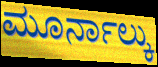
ಮೂರ್ನಾಲ್ಕು